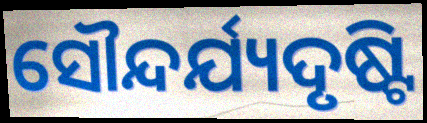
ସୌନ୍ଦର୍ଯ୍ୟଦୃଷ୍ଟି